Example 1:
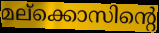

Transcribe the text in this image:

മല്ക്കൊസിന്റെ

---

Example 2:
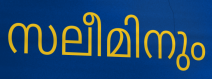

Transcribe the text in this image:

സലീമിനും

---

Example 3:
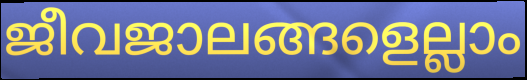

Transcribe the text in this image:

ജീവജാലങ്ങളെല്ലാം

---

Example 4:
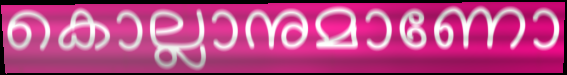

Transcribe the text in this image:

കൊല്ലാനുമാണോ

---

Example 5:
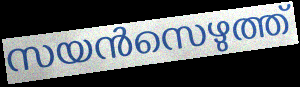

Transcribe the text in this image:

സയൻസെഴുത്ത്